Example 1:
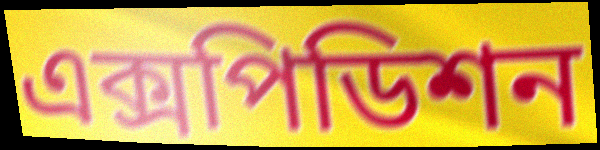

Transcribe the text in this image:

এক্সপিডিশন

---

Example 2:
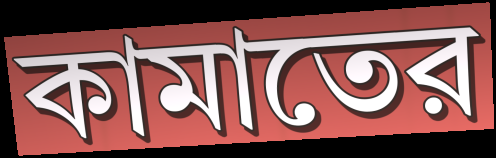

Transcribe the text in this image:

কামাতের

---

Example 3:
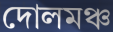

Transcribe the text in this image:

দোলমঞ্চ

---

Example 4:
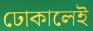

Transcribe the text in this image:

ঢোকালেই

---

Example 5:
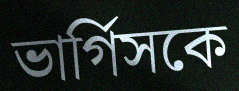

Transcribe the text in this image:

ভার্গিসকে